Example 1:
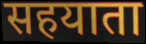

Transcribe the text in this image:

सहयाता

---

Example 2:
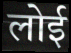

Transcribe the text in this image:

लोई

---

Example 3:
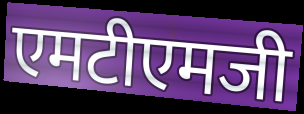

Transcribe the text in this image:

एमटीएमजी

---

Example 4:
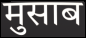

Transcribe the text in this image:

मुसाब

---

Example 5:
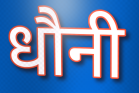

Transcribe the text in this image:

धौनी